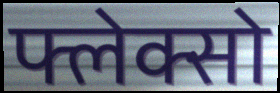
फ्लेक्सो